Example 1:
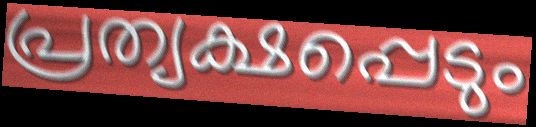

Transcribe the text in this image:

പ്രത്യക്ഷപ്പെടും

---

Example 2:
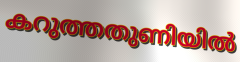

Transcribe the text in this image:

കറുത്തതുണിയിൽ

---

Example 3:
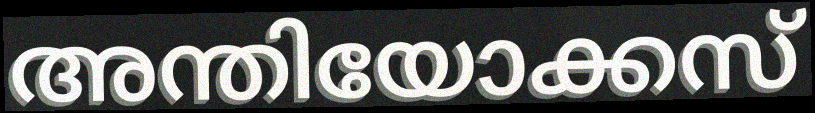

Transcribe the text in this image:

അന്തിയോക്കസ്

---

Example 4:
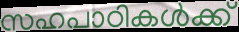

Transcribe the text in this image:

സഹപാഠികൾക്ക്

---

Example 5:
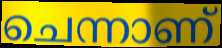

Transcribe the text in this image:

ചെന്നാണ്